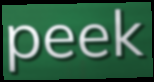
peek